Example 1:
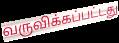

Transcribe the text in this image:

வருவிக்கப்பட்டது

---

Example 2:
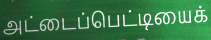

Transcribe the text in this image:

அட்டைப்பெட்டியைக்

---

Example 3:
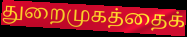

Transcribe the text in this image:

துறைமுகத்தைக்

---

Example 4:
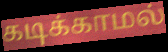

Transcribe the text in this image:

கடிக்காமல்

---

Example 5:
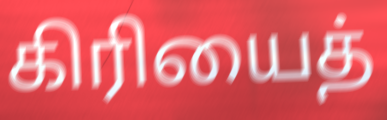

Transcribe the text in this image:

கிரியைத்